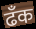
ढँक